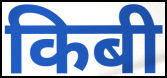
किबी